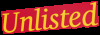
Unlisted